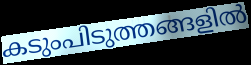
കടുംപിടുത്തങ്ങളിൽ